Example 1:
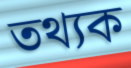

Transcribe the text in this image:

তথ্যক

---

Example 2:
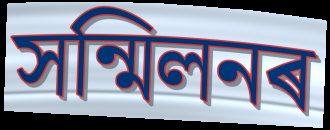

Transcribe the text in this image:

সন্মিলনৰ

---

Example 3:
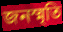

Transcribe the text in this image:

জনস্মৃতি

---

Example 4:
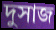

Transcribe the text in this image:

দুসাজ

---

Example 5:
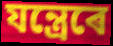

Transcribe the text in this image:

যন্ত্ৰেৰে